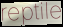
reptile